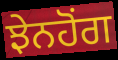
ਝੇਨਹੋਂਗ